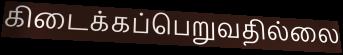
கிடைக்கப்பெறுவதில்லை